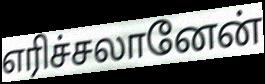
எரிச்சலானேன்